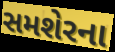
સમશેરના